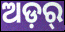
ଅଡ଼ର୍